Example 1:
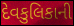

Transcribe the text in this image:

દેવકુલિકાની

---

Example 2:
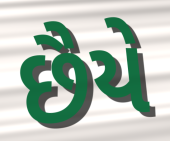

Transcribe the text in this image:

છૈયે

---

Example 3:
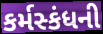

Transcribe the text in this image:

કર્મસ્કંધની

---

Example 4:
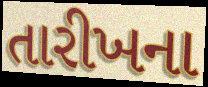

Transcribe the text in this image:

તારીખના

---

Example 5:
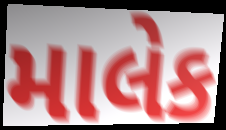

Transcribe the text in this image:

માલેક